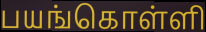
பயங்கொள்ளி